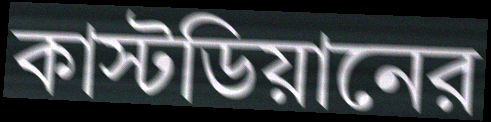
কাস্টডিয়ানের